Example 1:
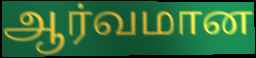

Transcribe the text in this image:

ஆர்வமான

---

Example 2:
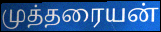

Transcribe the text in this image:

முத்தரையன்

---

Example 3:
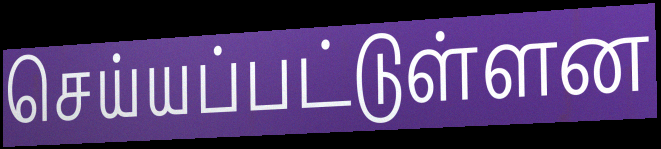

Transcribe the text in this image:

செய்யப்பட்டுள்ளன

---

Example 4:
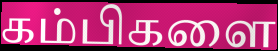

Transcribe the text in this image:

கம்பிகளை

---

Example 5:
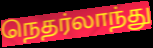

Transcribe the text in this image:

நெதர்லாந்து